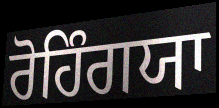
ਰੋਹਿੰਗਯਾ